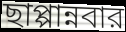
ছাপ্পান্নবার